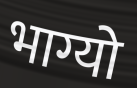
भाग्यो